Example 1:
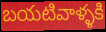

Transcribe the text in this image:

బయటివాళ్ళకి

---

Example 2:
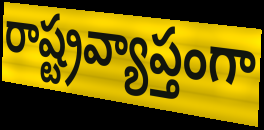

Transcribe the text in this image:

రాష్ట్రవ్యాప్తంగా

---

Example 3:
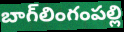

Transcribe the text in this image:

బాగ్‌లింగంపల్లి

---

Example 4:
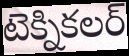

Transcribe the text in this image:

టెక్నికలర్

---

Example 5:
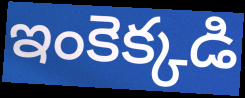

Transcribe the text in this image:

ఇంకెక్కడి